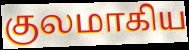
குலமாகிய